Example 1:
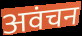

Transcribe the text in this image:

अवंचन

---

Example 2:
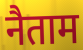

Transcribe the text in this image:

नैताम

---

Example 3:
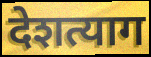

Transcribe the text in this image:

देशत्याग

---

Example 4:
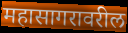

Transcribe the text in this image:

महासागरावरील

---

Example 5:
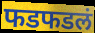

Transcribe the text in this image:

फडफडलं